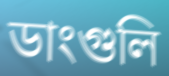
ডাংগুলি